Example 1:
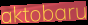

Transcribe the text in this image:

aktobaru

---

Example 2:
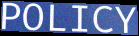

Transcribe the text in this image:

POLICY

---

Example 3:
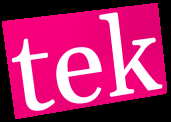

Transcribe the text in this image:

tek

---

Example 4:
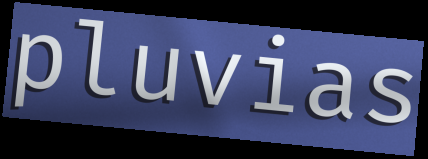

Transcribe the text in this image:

pluvias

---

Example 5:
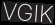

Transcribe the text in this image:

VGIK